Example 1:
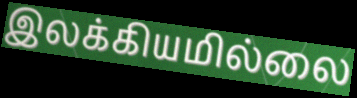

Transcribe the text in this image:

இலக்கியமில்லை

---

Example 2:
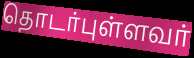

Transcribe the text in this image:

தொடர்புள்ளவர்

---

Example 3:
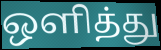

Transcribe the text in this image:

ஒளித்து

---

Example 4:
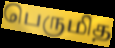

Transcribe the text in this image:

பெருமித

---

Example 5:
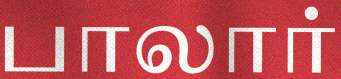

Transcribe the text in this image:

பாலார்